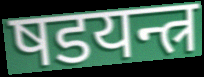
षडयन्त्र